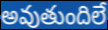
అవుతుందిలే